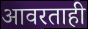
आवरताही